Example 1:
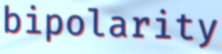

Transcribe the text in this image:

bipolarity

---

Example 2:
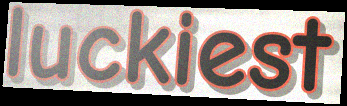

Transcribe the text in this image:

luckiest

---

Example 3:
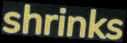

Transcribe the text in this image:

shrinks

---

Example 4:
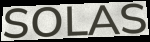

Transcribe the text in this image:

SOLAS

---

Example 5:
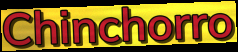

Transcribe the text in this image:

Chinchorro